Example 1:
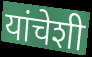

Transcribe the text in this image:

यांचेशी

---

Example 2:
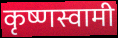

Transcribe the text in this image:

कृष्णस्वामी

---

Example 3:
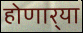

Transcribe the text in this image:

होणार्‍या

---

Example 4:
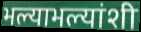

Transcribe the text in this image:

भल्याभल्यांशी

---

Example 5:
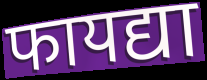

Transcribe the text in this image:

फायद्या